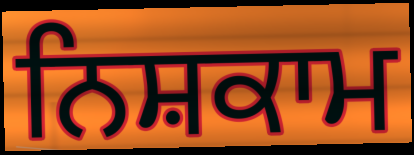
ਨਿਸ਼ਕਾਮ